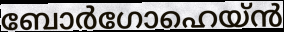
ബോർഗോഹെയ്ൻ